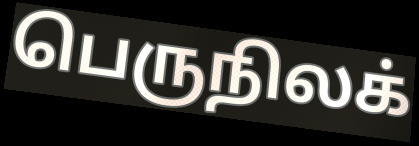
பெருநிலக்